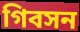
গিবসন